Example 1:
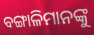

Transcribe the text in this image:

ବଙ୍ଗାଳିମାନଙ୍କୁ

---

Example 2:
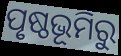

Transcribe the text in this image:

ପୃଷ୍ଠଭୂମିରୁ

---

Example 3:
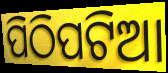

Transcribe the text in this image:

ପିଠିପଟିଆ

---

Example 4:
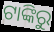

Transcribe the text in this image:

ଟାଙ୍କିରୁ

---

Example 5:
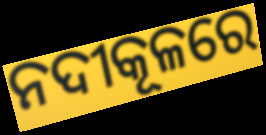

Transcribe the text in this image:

ନଦୀକୂଳରେ